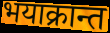
भयाक्रान्त